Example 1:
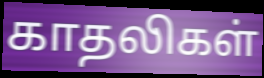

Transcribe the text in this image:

காதலிகள்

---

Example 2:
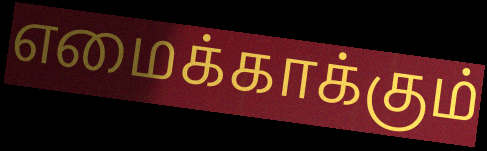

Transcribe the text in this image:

எமைக்காக்கும்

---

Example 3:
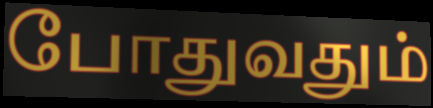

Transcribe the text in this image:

போதுவதும்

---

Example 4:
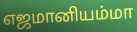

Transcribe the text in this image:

எஜமானியம்மா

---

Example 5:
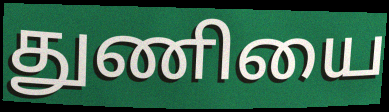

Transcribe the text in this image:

துணியை